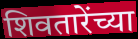
शिवतारेंच्या